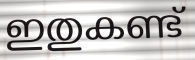
ഇതുകണ്ട്